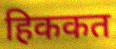
हिककत